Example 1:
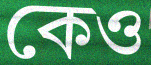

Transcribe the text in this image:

কেও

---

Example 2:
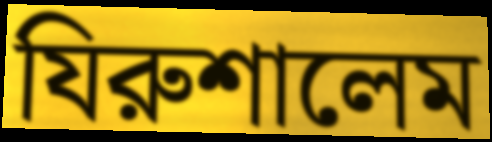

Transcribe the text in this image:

যিরুশালেম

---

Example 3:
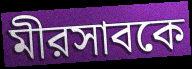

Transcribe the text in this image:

মীরসাবকে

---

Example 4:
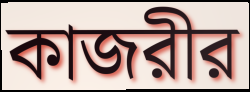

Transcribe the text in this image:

কাজরীর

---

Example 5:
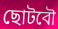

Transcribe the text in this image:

ছোটবৌ